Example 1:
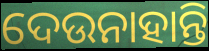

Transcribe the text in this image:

ଦେଉନାହାନ୍ତି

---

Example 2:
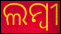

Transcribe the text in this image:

ଲମ୍ବୀ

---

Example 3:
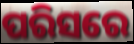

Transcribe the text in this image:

ପରିସରେ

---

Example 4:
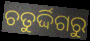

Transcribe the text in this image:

ଚତୁର୍ଦ୍ଦିଗରୁ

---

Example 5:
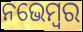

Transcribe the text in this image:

ନଭେମ୍ବର